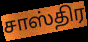
சாஸ்திர